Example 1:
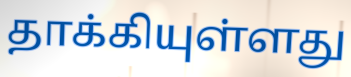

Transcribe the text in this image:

தாக்கியுள்ளது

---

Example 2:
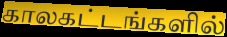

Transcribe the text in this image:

காலகட்டங்களில்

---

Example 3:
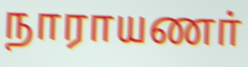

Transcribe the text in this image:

நாராயணர்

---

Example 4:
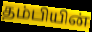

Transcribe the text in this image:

தம்பியின்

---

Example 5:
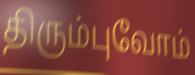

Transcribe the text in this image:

திரும்புவோம்